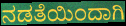
ನಡತೆಯಿಂದಾಗಿ